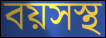
বয়সস্থ